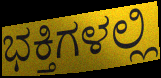
ಭಕ್ತಿಗಳಲ್ಲಿ